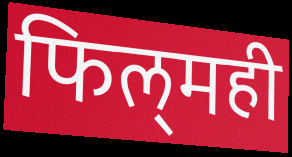
फिल्मही